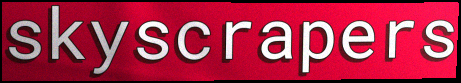
skyscrapers